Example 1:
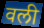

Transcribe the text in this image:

वली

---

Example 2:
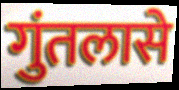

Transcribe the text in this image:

गुंतलासे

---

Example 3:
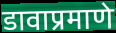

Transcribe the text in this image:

डावाप्रमाणे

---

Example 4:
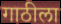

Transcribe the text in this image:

गाठीला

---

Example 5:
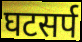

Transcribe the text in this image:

घटसर्प